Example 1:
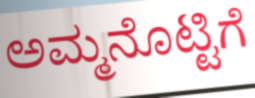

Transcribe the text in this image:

ಅಮ್ಮನೊಟ್ಟಿಗೆ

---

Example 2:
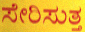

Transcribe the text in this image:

ಸೇರಿಸುತ್ತ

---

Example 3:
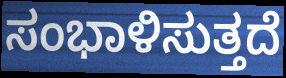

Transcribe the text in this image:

ಸಂಭಾಳಿಸುತ್ತದೆ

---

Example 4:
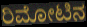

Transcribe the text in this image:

ರಿಮೋಟಿನ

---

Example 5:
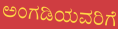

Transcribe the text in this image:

ಅಂಗಡಿಯವರಿಗೆ